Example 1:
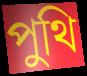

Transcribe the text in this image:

পুথি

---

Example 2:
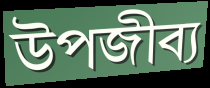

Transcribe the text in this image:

উপজীব্য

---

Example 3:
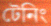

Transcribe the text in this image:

টেনিং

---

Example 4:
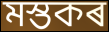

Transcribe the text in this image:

মস্তকৰ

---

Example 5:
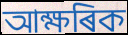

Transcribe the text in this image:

আক্ষৰিক